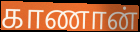
காணான்